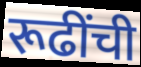
रूढींची